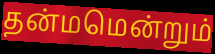
தன்மமென்றும்